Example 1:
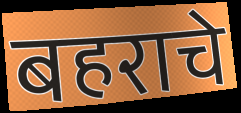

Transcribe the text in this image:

बहराचे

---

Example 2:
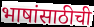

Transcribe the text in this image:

भाषांसाठीची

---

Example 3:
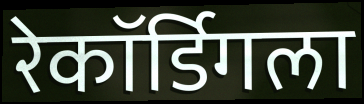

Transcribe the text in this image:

रेकॉर्डिगला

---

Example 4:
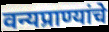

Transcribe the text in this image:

वन्यप्राण्यांचे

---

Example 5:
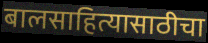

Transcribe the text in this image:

बालसाहित्यासाठीचा